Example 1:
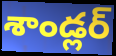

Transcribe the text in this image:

శాండ్లర్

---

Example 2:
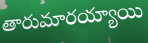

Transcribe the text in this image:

తారుమారయ్యాయి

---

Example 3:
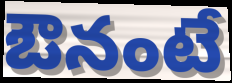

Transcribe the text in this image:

ఔనంటే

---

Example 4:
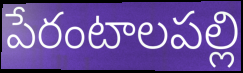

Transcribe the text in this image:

పేరంటాలపల్లి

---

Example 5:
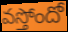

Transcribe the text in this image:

వస్తోందో